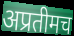
अप्रतीमच